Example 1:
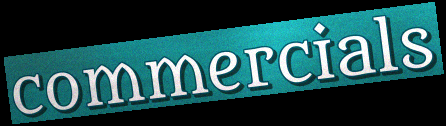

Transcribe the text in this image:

commercials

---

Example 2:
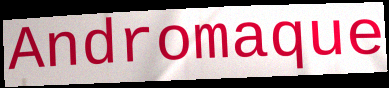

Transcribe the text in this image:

Andromaque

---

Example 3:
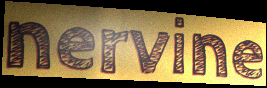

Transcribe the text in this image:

nervine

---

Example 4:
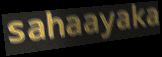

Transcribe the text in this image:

sahaayaka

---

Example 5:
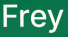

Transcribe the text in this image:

Frey